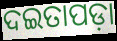
ଦଇତାପଡ଼ା